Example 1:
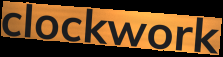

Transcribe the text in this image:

clockwork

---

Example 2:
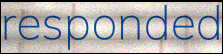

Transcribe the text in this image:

responded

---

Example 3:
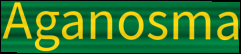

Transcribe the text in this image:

Aganosma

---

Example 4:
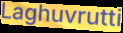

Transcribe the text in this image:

Laghuvrutti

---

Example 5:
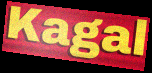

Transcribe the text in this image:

Kagal